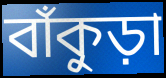
বাঁকুড়া